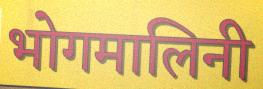
भोगमालिनी